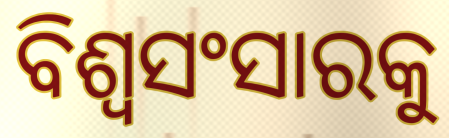
ବିଶ୍ୱସଂସାରକୁ